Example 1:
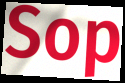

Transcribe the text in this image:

Sop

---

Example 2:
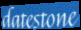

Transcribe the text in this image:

datestone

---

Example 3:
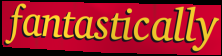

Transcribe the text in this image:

fantastically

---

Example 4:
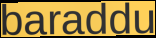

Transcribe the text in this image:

baraddu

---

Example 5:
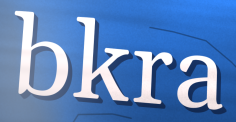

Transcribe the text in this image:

bkra